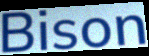
Bison